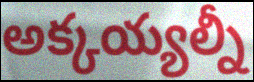
అక్కయ్యల్నీ